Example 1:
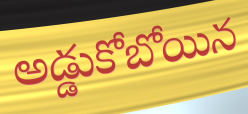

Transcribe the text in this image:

అడ్డుకోబోయిన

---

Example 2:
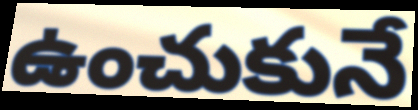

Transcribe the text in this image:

ఉంచుకునే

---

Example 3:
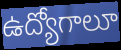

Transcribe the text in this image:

ఉద్యోగాలూ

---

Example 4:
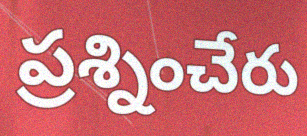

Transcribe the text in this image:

ప్రశ్నించేరు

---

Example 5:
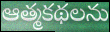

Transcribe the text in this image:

ఆత్మకథలను